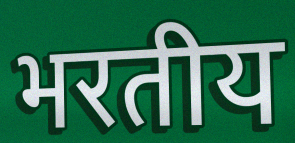
भरतीय